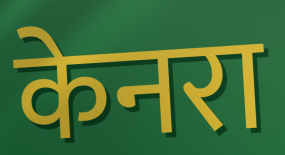
केनरा